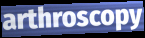
arthroscopy